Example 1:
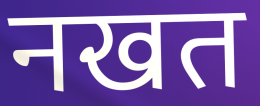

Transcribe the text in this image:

नखत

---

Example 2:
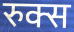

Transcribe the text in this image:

रुक्स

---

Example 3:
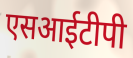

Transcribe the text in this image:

एसआईटीपी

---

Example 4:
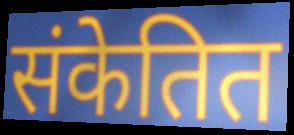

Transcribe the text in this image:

संकेतित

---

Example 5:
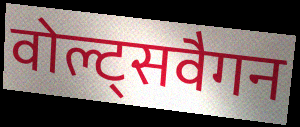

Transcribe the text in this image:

वोल्ट्सवैगन